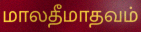
மாலதீமாதவம்